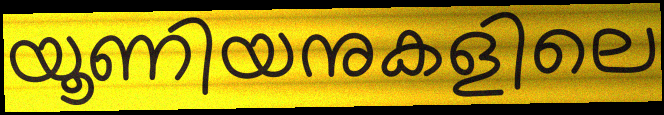
യൂണിയനുകളിലെ